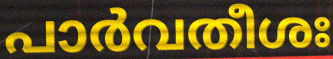
പാർവതീശഃ